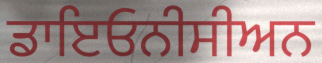
ਡਾਇਓਨੀਸੀਅਨ